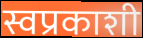
स्वप्रकाशी